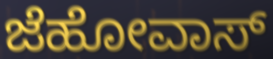
ಜೆಹೋವಾಸ್